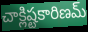
చాక్లిష్టకారిణమ్